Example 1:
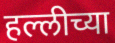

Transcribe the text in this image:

हल्लीच्या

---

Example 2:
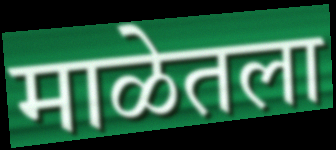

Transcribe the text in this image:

माळेतला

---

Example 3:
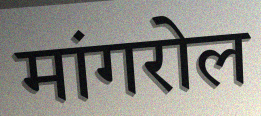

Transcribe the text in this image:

मांगरोल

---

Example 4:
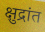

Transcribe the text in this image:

क्षुद्रांत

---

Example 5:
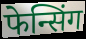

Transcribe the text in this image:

फेन्सिंग